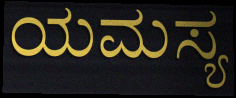
ಯಮಸ್ಯ